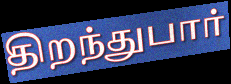
திறந்துபார்